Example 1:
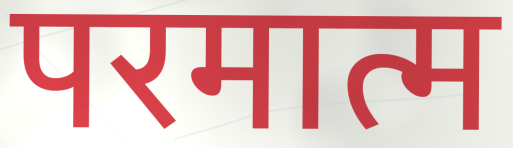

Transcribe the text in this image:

परमात्म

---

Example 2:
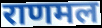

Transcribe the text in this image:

राणमल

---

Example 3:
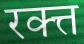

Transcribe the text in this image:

रक्त्त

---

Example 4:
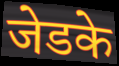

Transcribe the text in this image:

जेडके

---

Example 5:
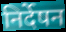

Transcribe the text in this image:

निर्देषन